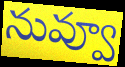
నువ్వూ